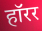
हॉरर